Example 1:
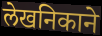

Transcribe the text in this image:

लेखनिकाने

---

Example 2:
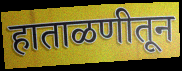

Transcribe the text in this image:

हाताळणीतून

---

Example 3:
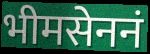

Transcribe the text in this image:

भीमसेननं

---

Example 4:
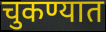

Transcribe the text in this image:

चुकण्यात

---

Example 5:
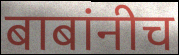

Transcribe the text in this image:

बाबांनीच